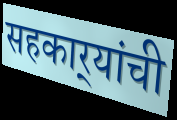
सहकार्यांची